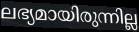
ലഭ്യമായിരുന്നില്ല